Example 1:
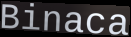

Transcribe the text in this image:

Binaca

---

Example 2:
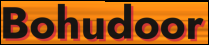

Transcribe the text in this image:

Bohudoor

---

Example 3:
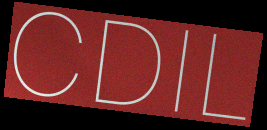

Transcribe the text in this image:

CDIL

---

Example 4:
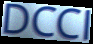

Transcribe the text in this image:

DCCI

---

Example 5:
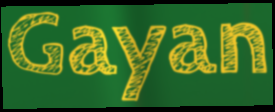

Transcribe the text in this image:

Gayan